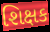
શિક્ષક